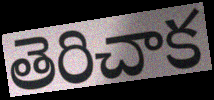
తెరిచాక